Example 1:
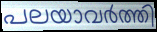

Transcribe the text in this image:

പലയാവർത്തി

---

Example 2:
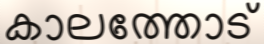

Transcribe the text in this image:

കാലത്തോട്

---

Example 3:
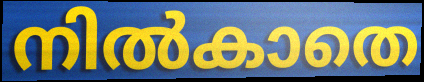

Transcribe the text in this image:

നിൽകാതെ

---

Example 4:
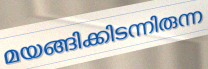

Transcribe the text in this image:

മയങ്ങിക്കിടന്നിരുന്ന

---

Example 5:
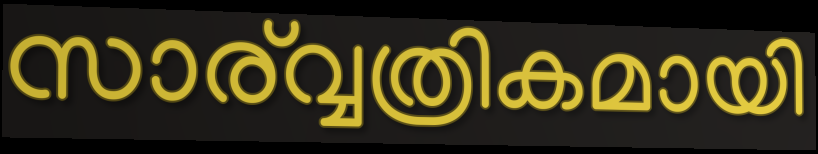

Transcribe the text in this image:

സാര്വ്വത്രികമായി